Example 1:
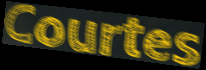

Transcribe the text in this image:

Courtes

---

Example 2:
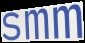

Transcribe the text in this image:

smm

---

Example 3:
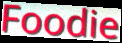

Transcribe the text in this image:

Foodie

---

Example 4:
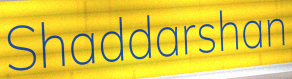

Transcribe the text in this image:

Shaddarshan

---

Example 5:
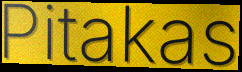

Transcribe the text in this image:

Pitakas